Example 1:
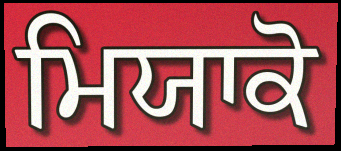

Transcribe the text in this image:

ਮਿਯਾਕੋ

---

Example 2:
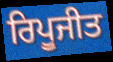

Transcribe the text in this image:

ਰਿਪੂਜੀਤ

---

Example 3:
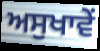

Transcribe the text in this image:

ਅਸੁਖਾਵੇਂ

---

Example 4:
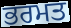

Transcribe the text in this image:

ਭਰਮਤ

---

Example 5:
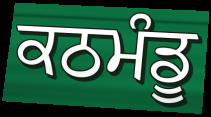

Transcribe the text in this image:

ਕਠਮੰਡੂ